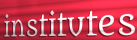
institutes